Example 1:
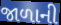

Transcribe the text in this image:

જાળાની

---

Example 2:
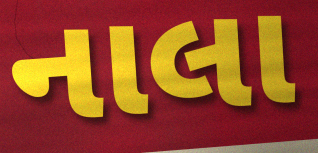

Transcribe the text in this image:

નાલા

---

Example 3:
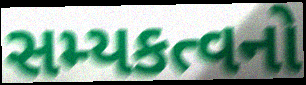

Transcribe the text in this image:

સમ્યકત્વનો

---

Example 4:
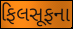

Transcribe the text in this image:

ફિલસૂફના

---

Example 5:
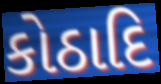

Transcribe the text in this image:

કોઠાદિ